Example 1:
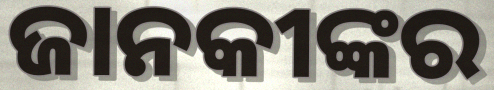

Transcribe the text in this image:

ଜାନକୀଙ୍କର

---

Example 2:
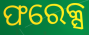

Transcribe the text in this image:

ଫରେକ୍ସ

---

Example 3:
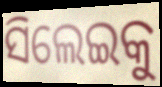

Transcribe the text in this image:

ସିଲେଇକୁ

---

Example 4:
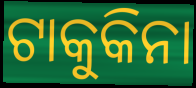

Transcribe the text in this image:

ଟାକୁକିନା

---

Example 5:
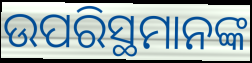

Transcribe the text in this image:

ଉପରିସ୍ଥମାନଙ୍କ